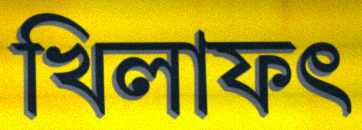
খিলাফৎ